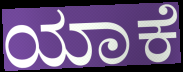
ಯಾಕೆ